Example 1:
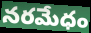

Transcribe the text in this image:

నరమేధం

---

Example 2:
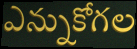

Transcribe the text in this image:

ఎన్నుకోగల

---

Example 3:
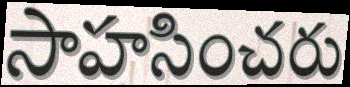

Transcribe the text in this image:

సాహసించరు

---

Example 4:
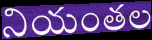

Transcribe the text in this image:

నియంతల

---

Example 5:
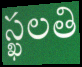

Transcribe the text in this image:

స్ఖలతి